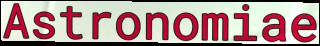
Astronomiae